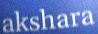
akshara